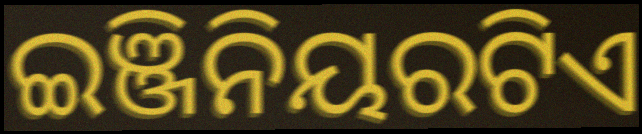
ଇଞ୍ଜିନିୟରଟିଏ